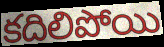
కదిలిపోయి